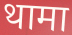
थामा